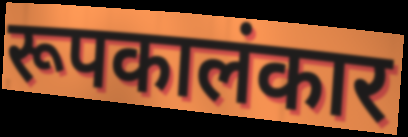
रूपकालंकार